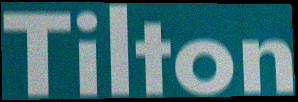
Tilton